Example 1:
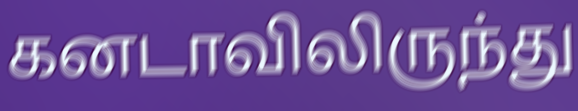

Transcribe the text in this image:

கனடாவிலிருந்து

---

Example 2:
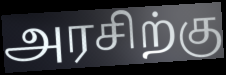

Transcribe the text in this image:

அரசிற்கு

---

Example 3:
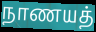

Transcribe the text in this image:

நாணயத்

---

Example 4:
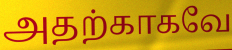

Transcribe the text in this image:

அதற்காகவே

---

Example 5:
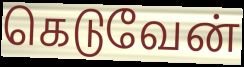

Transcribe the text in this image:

கெடுவேன்